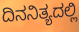
ದಿನನಿತ್ಯದಲ್ಲಿ